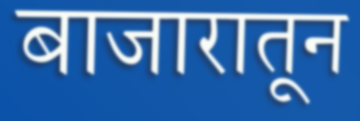
बाजारातून